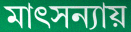
মাৎসন্যায়